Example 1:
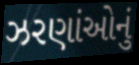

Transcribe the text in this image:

ઝરણાંઓનું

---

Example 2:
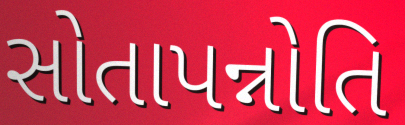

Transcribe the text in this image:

સોતાપન્નોતિ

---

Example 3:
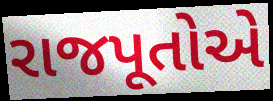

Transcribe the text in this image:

રાજપૂતોએ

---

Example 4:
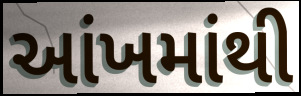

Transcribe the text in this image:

આંખમાંથી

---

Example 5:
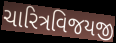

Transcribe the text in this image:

ચારિત્રવિજયજી